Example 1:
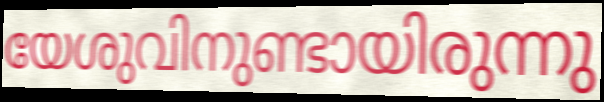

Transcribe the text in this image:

യേശുവിനുണ്ടായിരുന്നു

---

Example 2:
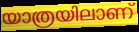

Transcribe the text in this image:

യാത്രയിലാണ്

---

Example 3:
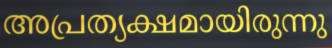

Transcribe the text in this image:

അപ്രത്യക്ഷമായിരുന്നു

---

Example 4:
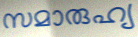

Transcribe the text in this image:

സമാരുഹ്യ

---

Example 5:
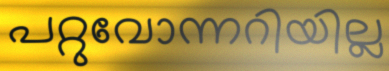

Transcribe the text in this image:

പറ്റുവോന്നറിയില്ല